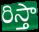
రిస్తా